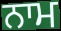
ਨਾਮ